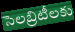
సెలబ్రిటీలకు